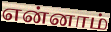
என்னாம்